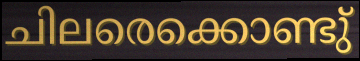
ചിലരെക്കൊണ്ടു്